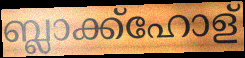
ബ്ലാക്ക്ഹോള്